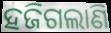
ହଜିଗଲାଣି